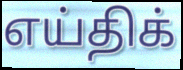
எய்திக்